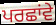
ਪਰਛਾਂਵੇ